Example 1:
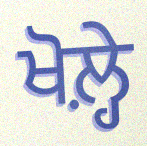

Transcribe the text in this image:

ਖੋਲ਼੍ਹੇ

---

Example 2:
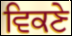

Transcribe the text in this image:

ਵਿਕਣੇ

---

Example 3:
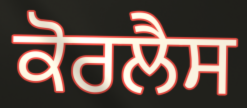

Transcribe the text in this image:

ਕੋਰਲੈਸ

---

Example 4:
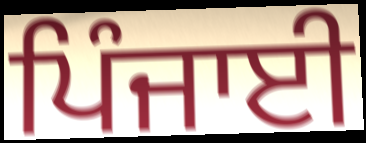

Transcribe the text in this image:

ਪਿੰਜਾਈ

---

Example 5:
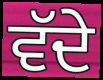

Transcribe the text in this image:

ਵੱਦੇ